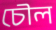
চৌল